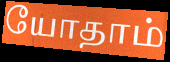
யோதாம்